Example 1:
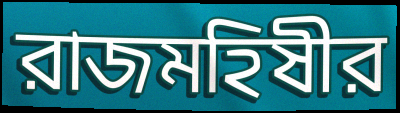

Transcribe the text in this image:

রাজমহিষীর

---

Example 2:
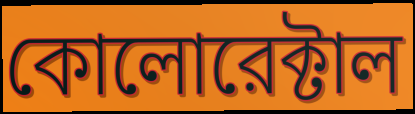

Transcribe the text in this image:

কোলোরেক্টাল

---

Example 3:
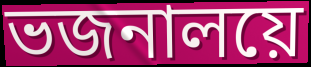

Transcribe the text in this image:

ভজনালয়ে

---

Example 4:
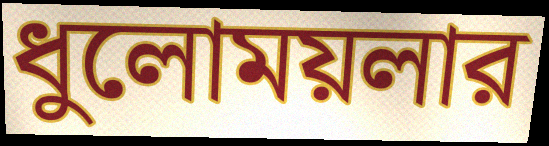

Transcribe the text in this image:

ধুলোময়লার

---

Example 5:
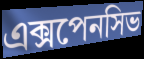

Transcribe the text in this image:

এক্সপেনসিভ